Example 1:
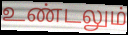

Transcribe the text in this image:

உண்டலும்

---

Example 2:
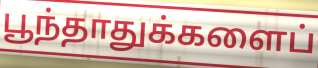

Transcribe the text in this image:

பூந்தாதுக்களைப்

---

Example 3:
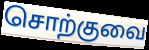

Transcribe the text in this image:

சொற்குவை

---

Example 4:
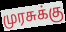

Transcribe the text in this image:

முரசுக்கு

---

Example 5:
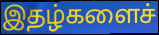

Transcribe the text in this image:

இதழ்களைச்